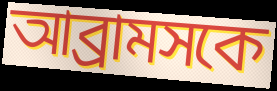
আব্রামসকে